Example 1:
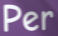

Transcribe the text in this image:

Per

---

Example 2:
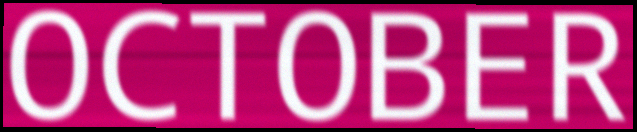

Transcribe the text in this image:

OCTOBER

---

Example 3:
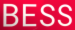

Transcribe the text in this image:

BESS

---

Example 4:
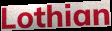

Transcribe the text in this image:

Lothian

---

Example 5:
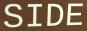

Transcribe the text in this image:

SIDE